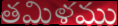
తమిళము